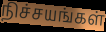
நிச்சயங்கள்